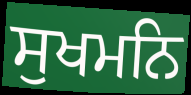
ਸੁਖਮਨਿ